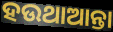
ହଉଥାଆନ୍ତା